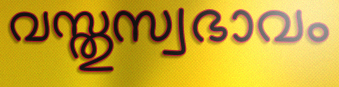
വസ്തുസ്വഭാവം